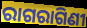
ରାଗରାଗିଣୀ